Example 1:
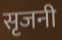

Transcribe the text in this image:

सृजनी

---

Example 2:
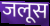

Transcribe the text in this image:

जलूस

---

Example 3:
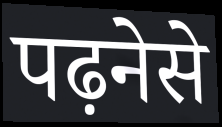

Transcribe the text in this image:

पढ़नेसे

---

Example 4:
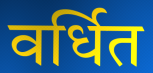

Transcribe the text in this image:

वर्धित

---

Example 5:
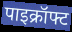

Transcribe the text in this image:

पाइक्रॉफ्ट